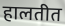
हालतीत